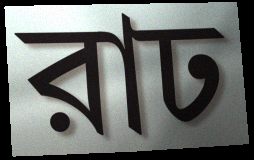
রাঢ